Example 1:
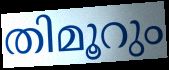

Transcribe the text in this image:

തിമൂറും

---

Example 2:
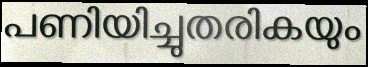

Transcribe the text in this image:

പണിയിച്ചുതരികയും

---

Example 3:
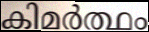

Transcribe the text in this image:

കിമർത്ഥം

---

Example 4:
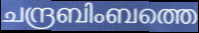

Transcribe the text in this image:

ചന്ദ്രബിംബത്തെ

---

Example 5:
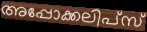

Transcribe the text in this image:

അപ്പോക്കലിപ്സ്